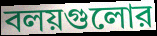
বলয়গুলোর